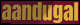
aandugal